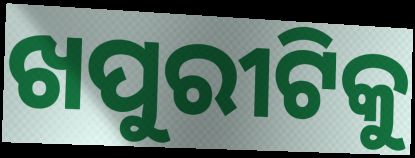
ଖପୁରୀଟିକୁ